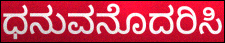
ಧನುವನೊದರಿಸಿ